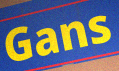
Gans